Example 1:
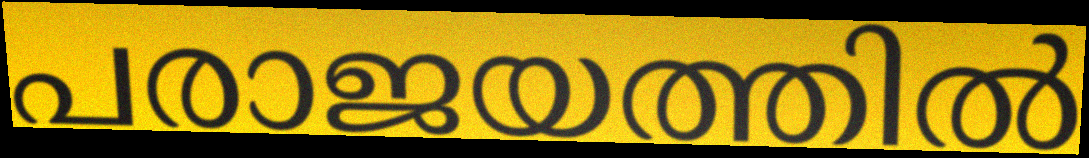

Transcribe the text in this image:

പരാജയത്തിൽ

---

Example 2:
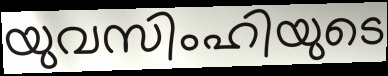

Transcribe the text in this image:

യുവസിംഹിയുടെ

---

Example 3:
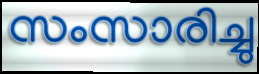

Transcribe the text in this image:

സംസാരിച്ചു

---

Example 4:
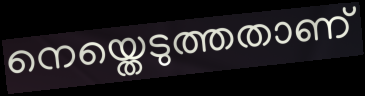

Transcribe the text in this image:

നെയ്തെടുത്തതാണ്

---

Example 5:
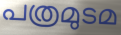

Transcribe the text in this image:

പത്രമുടമ